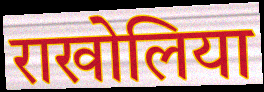
राखोलिया